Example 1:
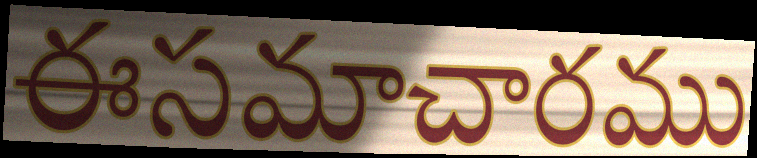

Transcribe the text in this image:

ఈసమాచారము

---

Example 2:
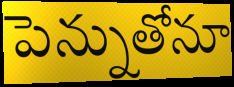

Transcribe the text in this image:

పెన్నుతోనూ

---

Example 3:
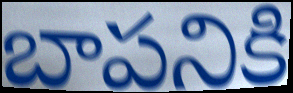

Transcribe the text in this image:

బాపనికి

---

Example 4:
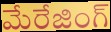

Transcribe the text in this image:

మేరేజింగ్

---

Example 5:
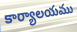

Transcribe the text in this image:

కార్యాలయము